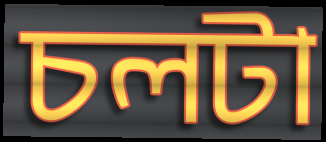
চলটা